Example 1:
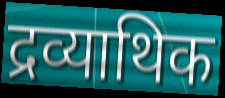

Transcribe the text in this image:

द्रव्याथिक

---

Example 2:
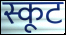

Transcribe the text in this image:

स्कूट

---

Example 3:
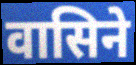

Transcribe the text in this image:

वासिने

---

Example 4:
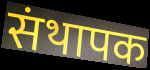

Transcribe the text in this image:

संथापक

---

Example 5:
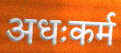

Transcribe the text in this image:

अधःकर्म